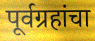
पूर्वग्रहांचा